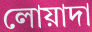
লোয়াদা